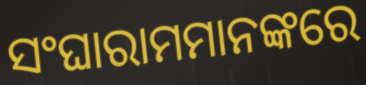
ସଂଘାରାମମାନଙ୍କରେ